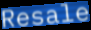
Resale